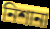
নিশানা